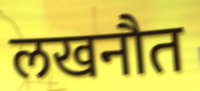
लखनौत